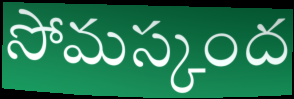
సోమస్కంద